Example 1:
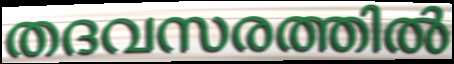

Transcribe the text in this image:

തദവസരത്തിൽ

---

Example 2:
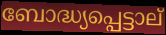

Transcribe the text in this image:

ബോദ്ധ്യപ്പെട്ടാല്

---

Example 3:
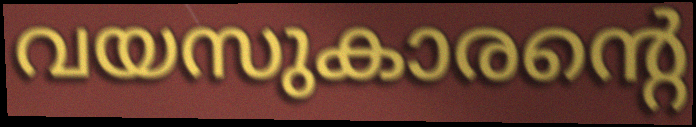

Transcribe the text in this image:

വയസുകാരന്റെ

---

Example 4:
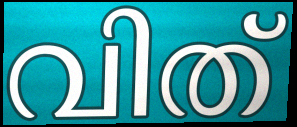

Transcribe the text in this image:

വിത്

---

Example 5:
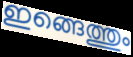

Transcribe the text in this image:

ഇങ്ങെത്തും